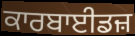
ਕਾਰਬਾਈਡਜ਼